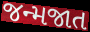
જન્મજાત